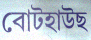
বোটহাউছ